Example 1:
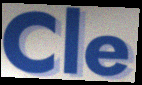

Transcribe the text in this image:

Cle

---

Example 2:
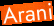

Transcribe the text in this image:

Arani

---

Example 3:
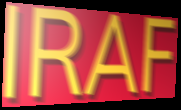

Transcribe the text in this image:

IRAF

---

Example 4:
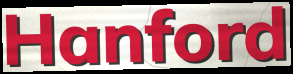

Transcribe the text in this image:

Hanford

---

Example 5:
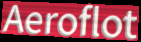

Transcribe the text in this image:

Aeroflot